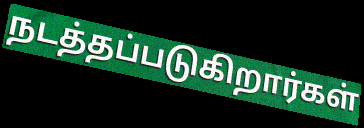
நடத்தப்படுகிறார்கள்